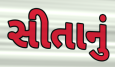
સીતાનું